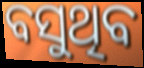
ବସୁଥିବ